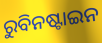
ରୁବିନଷ୍ଟାଇନ